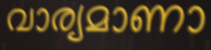
വാര്യമാണാ